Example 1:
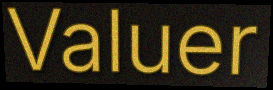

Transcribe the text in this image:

Valuer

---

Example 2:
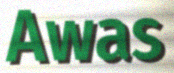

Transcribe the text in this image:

Awas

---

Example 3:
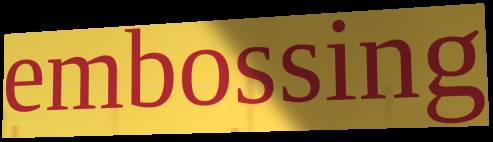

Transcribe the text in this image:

embossing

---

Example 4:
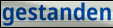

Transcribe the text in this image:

gestanden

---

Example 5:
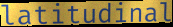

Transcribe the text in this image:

latitudinal